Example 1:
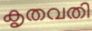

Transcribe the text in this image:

കൃതവതി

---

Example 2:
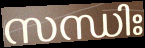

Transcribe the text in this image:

സന്ധിഃ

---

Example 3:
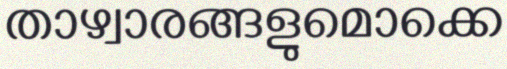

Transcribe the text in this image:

താഴ്വാരങ്ങളുമൊക്കെ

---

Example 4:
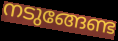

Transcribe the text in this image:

നടുങ്ങേണ്ട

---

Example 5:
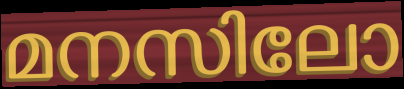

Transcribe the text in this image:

മനസിലോ